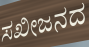
ಸಖೀಜನದ